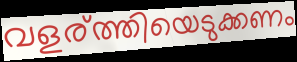
വളര്ത്തിയെടുക്കണം